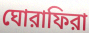
ঘোরাফিরা